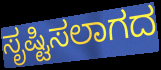
ಸೃಷ್ಟಿಸಲಾಗದ